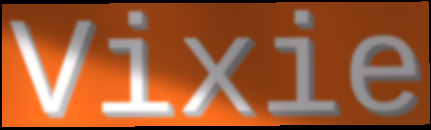
Vixie